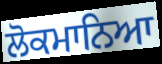
ਲੋਕਮਾਨਿਆ